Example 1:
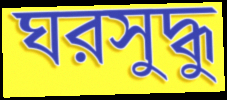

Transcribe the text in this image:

ঘরসুদ্ধু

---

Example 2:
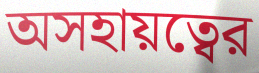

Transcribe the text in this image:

অসহায়ত্বের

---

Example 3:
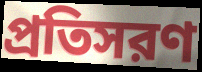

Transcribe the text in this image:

প্রতিসরণ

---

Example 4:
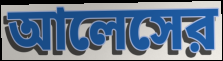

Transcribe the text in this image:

আলেসের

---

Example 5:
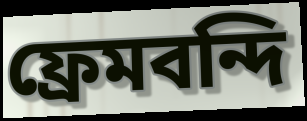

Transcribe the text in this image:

ফ্রেমবন্দি